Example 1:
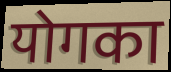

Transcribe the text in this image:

योगका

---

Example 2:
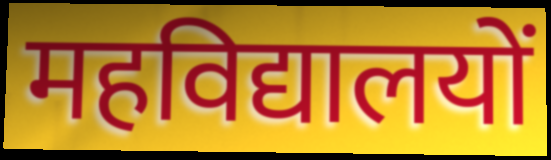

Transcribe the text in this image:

महविद्यालयों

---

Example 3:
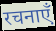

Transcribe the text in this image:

रचनाएँ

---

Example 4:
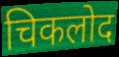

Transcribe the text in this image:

चिकलोद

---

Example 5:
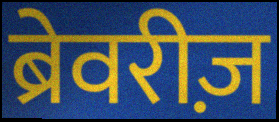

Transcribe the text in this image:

ब्रेवरीज़